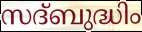
സദ്ബുദ്ധിം